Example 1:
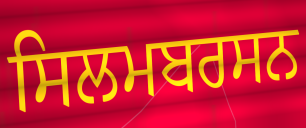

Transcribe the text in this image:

ਸਿਲਮਬਰਸਨ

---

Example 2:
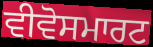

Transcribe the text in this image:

ਵੀਵੋਸਮਾਰਟ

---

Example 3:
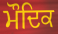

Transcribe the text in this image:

ਮੌਦਿਕ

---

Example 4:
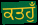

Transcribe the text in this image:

ਕਤਹੁਁ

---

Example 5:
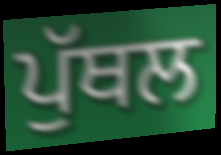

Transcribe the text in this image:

ਪੁੱਥਲ